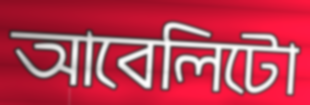
আবেলিটো